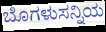
ಬೊಗಳುಸನ್ನಿಯ